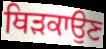
ਥਿੜਕਾਉਣ